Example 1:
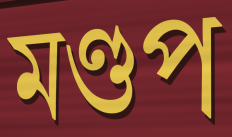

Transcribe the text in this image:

মণ্ডপ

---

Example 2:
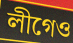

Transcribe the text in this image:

লীগেও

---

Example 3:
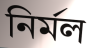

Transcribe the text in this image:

নিৰ্মল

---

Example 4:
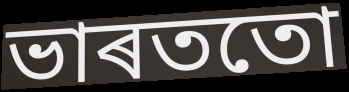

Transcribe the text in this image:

ভাৰততো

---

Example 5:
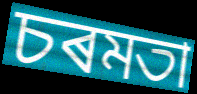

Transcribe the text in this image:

চৰমতা